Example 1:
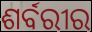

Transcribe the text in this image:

ଶର୍ବରୀର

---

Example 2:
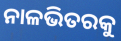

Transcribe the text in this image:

ନାଳଭିତରକୁ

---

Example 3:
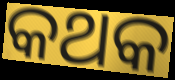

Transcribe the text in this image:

କଥକ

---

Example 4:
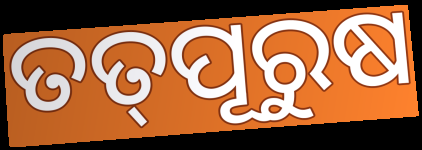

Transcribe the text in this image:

ତତ୍‌ପୂରୁଷ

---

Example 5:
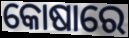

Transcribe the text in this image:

କୋଷାରେ